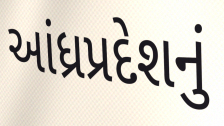
આંધ્રપ્રદેશનું